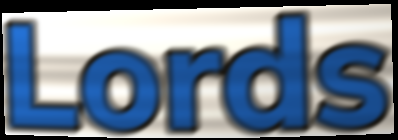
Lords